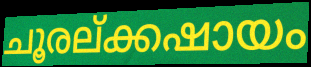
ചൂരല്ക്കഷായം